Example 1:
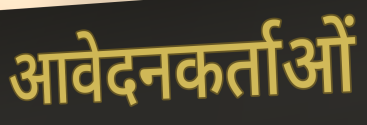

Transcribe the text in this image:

आवेदनकर्ताओं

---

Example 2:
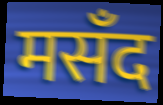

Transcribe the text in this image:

मसँद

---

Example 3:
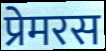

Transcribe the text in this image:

प्रेमरस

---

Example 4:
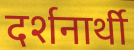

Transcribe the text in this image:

दर्शनार्थी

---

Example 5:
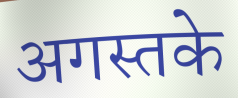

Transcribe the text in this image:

अगस्तके